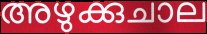
അഴുക്കുചാല